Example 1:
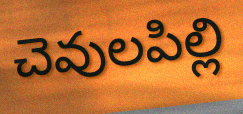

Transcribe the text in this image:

చెవులపిల్లి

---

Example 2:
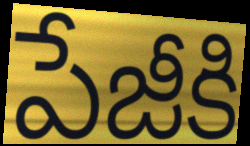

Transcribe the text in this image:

పేజీకి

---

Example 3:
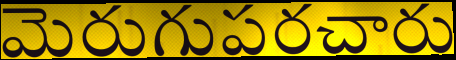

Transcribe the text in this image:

మెరుగుపరచారు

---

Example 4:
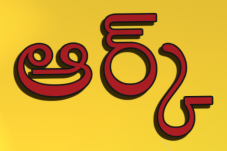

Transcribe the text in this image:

ఆర్క్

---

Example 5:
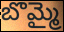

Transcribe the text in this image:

బొమ్మై